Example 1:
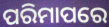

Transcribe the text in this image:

ପରିମାପରେ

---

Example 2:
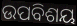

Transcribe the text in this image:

ଉପବିଶୟ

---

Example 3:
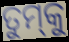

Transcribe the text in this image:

ତୁମ୍‌କୁ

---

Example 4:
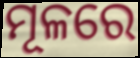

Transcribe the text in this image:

ମୂଳରେ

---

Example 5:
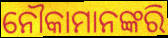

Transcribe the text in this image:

ନୌକାମାନଙ୍କରି